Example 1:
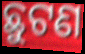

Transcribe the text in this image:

ଛୁଟଣ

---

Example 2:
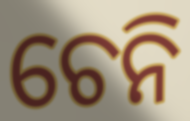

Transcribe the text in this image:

ଚେନି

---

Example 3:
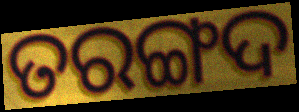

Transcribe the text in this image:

ତରଙ୍ଗଦ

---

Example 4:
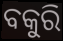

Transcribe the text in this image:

ବକୁରି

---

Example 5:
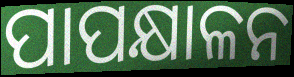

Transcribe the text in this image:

ପାପକ୍ଷାଳନ